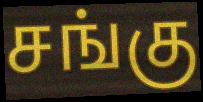
சங்கு